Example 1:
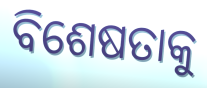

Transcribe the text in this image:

ବିଶେଷତାକୁ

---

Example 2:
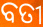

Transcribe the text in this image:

ବତୀ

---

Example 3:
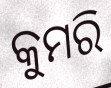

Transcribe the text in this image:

କୁମରି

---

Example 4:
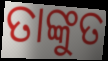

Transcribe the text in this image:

ତାଙ୍କୁତ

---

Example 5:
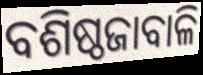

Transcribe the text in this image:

ବଶିଷ୍ଠଜାବାଳି